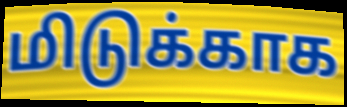
மிடுக்காக